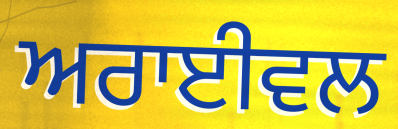
ਅਰਾਈਵਲ